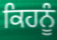
ਕਿਹਨੂੰ